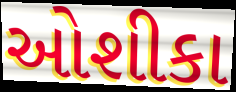
ઓશીકા